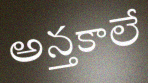
అన్తకాలే